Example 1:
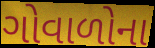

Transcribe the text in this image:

ગોવાળોના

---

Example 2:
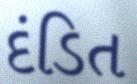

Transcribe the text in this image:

દંડિત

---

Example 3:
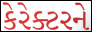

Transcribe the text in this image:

કેરેક્ટરને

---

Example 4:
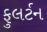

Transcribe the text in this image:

ફુલર્ટન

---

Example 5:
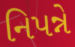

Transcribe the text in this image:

નિપન્ને